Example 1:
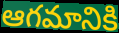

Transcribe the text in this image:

ఆగమానికి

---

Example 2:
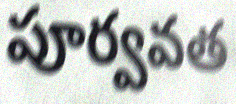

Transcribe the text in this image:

పూర్వవత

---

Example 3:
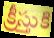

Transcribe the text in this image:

క్రీస్తుకి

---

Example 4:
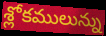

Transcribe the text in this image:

శ్లోకములున్ను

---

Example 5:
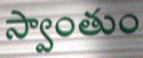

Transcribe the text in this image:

స్వాంతుం